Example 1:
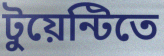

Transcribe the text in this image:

টুয়েন্টিতে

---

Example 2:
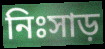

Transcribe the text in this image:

নিঃসাড়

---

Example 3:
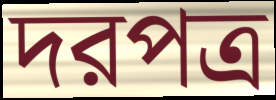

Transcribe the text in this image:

দরপত্র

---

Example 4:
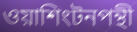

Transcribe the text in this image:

ওয়াশিংটনপন্থী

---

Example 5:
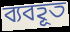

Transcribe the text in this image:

ব্যবহূত